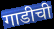
गाडीची